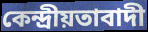
কেন্দ্ৰীয়তাবাদী